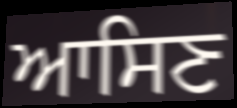
ਆਸਿਣ